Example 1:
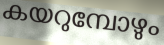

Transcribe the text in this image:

കയറുമ്പോഴും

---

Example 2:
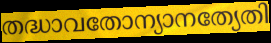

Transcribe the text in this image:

തദ്ധാവതോന്യാനത്യേതി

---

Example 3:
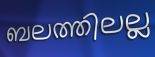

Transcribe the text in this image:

ബലത്തിലല്ല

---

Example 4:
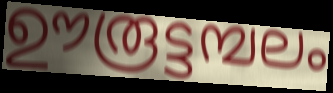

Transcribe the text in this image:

ഊരൂട്ടമ്പലം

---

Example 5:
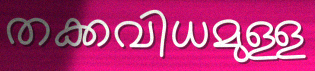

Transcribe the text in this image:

തക്കവിധമുള്ള